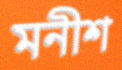
মনীশ